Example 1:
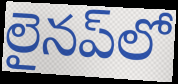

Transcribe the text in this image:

లైనప్‌లో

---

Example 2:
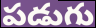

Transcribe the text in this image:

పడుగు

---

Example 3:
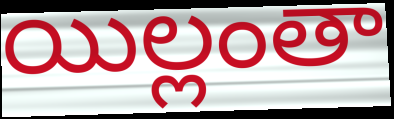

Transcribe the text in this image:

యిల్లంతా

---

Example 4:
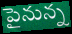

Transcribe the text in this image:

పైనున్న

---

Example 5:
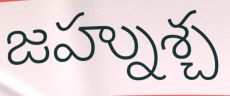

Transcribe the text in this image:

జహ్నుశ్చ